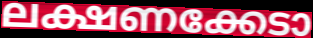
ലക്ഷണക്കേടാ